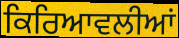
ਕਿਰਿਆਵਲੀਆਂ